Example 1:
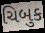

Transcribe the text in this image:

ચિબુક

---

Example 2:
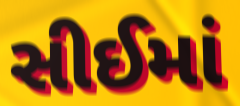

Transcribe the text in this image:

સીઈમાં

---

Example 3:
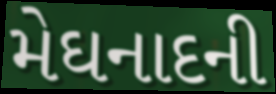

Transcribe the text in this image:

મેઘનાદની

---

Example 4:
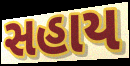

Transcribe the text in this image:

સહાય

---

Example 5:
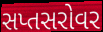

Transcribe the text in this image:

સપ્તસરોવર